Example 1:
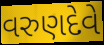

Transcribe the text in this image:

વરુણદેવે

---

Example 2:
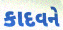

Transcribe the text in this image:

કાદવને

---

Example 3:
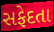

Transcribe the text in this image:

સફેદતા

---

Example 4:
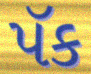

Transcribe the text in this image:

પૅક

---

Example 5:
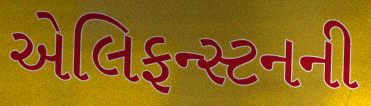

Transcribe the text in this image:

એલિફન્સ્ટનની